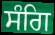
ਸੰਗਿ